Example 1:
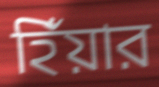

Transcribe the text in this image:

হিঁয়ার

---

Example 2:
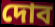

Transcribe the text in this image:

দোব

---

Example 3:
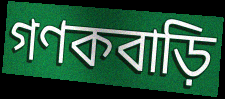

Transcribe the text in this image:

গণকবাড়ি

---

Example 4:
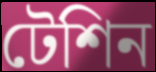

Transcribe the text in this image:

টেশিন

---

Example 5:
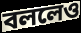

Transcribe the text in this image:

বললেও